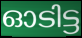
ഓടിട്ട